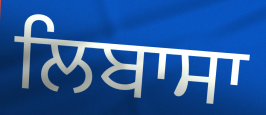
ਲਿਬਾਸਾ